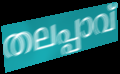
തലപ്പാവ്